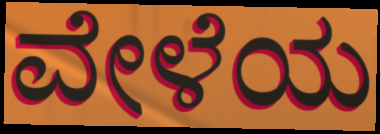
ವೇಳೆಯ